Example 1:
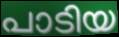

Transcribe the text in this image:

പാടിയ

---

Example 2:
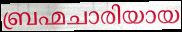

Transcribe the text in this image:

ബ്രഹ്മചാരിയായ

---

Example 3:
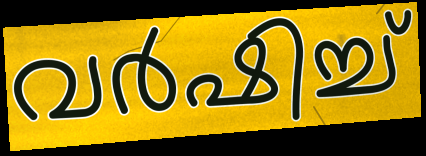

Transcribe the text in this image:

വർഷിച്ച്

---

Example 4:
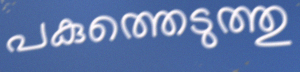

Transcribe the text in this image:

പകുത്തെടുത്തു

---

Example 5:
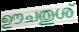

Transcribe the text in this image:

ഊചതുശ്